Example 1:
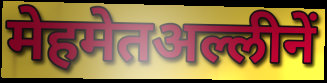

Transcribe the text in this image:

मेहमेतअल्लीनें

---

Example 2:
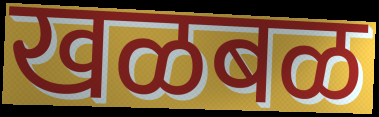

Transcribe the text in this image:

खळबळ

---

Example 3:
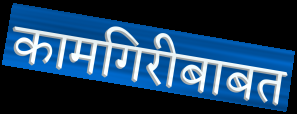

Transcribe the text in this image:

कामगिरीबाबत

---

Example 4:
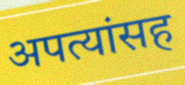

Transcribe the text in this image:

अपत्यांसह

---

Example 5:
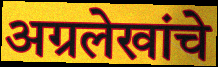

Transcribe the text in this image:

अग्रलेखांचे